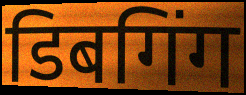
डिबगिंग